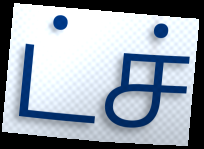
ட்ச்